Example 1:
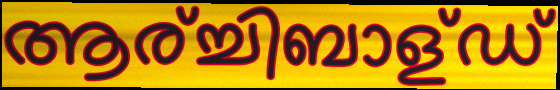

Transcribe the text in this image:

ആര്ച്ചിബാള്ഡ്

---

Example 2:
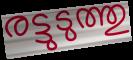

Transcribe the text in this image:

രട്ടുടുത്തു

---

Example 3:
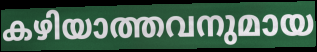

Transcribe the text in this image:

കഴിയാത്തവനുമായ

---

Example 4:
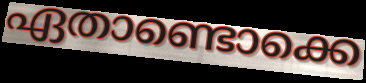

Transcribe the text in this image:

ഏതാണ്ടൊക്കെ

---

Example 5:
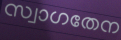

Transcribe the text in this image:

സ്വാഗതേന